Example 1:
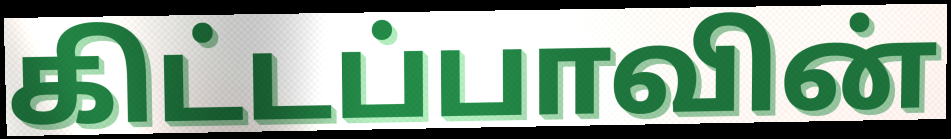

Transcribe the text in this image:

கிட்டப்பாவின்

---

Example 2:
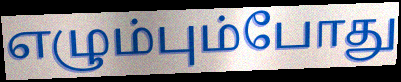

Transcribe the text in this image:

எழும்பும்போது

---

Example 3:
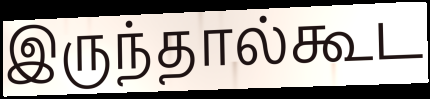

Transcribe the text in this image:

இருந்தால்கூட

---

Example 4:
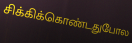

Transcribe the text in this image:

சிக்கிக்கொண்டதுபோல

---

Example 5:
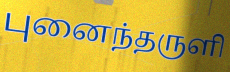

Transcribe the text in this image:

புனைந்தருளி